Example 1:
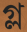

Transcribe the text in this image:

গ্ল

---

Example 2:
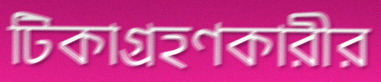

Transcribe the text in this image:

টিকাগ্রহণকারীর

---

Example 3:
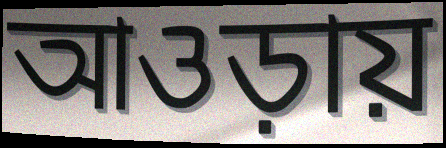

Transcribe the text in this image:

আওড়ায়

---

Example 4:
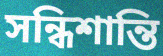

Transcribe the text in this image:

সন্ধিশান্তি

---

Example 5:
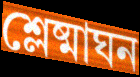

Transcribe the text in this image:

শ্লেষ্মাঘন